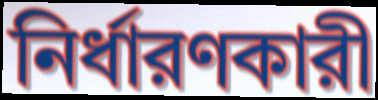
নির্ধারণকারী